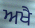
ਅਖੈ